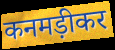
कनमड़ीकर